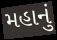
મહાનું